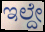
ಇಲ್ದೇ